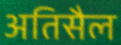
अतिसैल